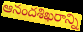
ఆనందశిఖరాన్ని